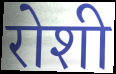
रोशी